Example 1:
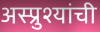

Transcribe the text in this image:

अस्प्रुश्यांची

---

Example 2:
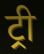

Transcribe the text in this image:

ट्री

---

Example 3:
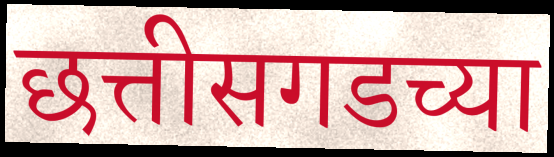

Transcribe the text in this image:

छत्तीसगडच्या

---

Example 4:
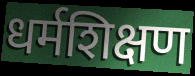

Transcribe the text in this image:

धर्मशिक्षण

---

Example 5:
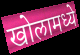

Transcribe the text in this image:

खोलामध्ये